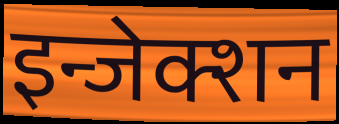
इन्जेक्शन